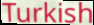
Turkish